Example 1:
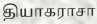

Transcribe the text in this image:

தியாகராசா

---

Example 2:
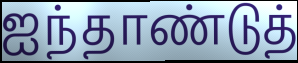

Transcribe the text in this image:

ஐந்தாண்டுத்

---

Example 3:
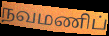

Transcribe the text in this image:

நவமணிப்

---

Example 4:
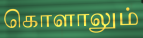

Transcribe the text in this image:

கொளாலும்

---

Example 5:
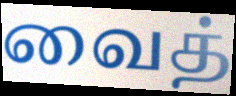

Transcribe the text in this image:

வைத்